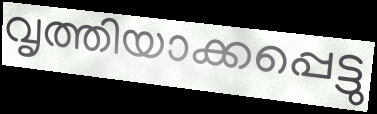
വൃത്തിയാക്കപ്പെട്ടു